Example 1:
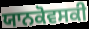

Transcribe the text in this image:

ਯਾਨਕੋਵਸਕੀ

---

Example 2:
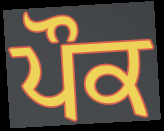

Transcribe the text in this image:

ਪੌਕ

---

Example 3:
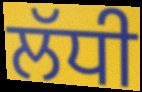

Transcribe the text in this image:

ਲੱਧੀ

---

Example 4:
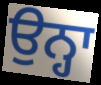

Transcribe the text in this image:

ਉਨ੍ਹਾ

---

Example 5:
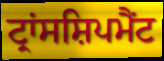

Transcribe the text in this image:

ਟ੍ਰਾਂਸਸ਼ਿਪਮੈਂਟ